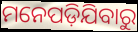
ମନେପଡ଼ିଯିବାରୁ